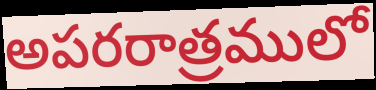
అపరరాత్రములో